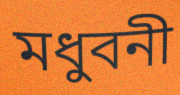
মধুবনী